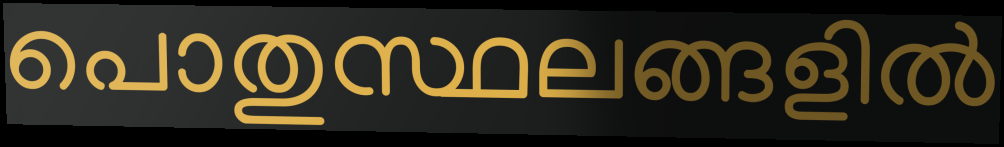
പൊതുസ്ഥലങ്ങളിൽ